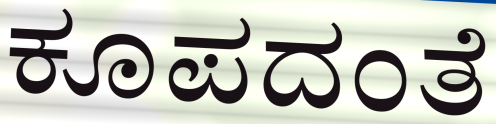
ಕೂಪದಂತೆ